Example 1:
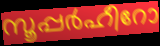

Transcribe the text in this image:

സൂപ്പർഹീറോ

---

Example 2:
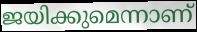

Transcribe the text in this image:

ജയിക്കുമെന്നാണ്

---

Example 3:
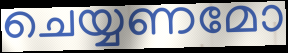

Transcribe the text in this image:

ചെയ്യണമോ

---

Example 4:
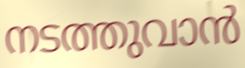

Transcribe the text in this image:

നടത്തുവാൻ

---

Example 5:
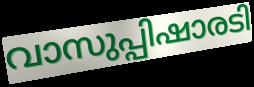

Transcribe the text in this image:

വാസുപ്പിഷാരടി